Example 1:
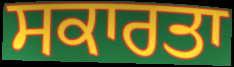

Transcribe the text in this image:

ਸਕਾਰਤਾ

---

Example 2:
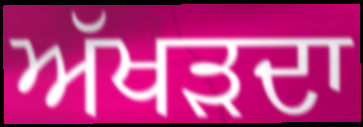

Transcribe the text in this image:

ਅੱਖੜਦਾ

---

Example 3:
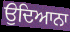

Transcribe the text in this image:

ਉਦਿਆਨਾ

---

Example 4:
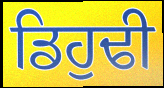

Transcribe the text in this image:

ਡਿਹੁਢੀ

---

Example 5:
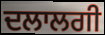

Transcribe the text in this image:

ਦਲਾਲਗੀ